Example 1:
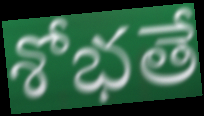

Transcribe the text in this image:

శోభతే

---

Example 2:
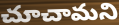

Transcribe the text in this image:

చూచామని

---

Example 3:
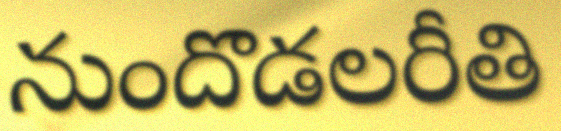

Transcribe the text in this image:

నుందొడలరీతి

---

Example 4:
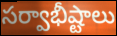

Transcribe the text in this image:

సర్వాభీష్టాలు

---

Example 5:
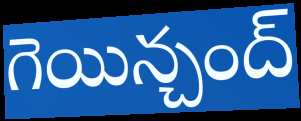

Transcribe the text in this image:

గెయిన్చంద్